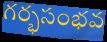
గర్భసంభవ